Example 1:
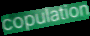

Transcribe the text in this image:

copulation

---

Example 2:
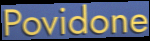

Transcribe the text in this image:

Povidone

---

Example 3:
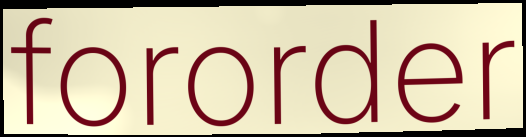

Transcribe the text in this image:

fororder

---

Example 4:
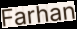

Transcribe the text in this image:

Farhan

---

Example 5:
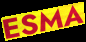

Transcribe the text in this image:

ESMA